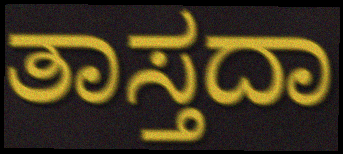
ತಾಸ್ತದಾ